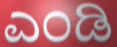
ಎಂಡಿ